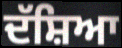
ਦੱਸ਼ਿਆ